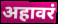
अहावरं